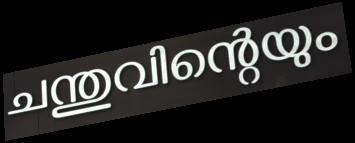
ചന്തുവിന്റെയും